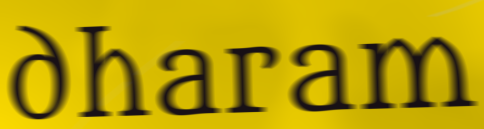
dharam